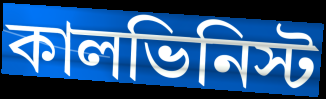
কালভিনিস্ট